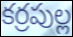
కర్రపుల్ల